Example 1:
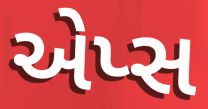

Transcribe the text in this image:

એપ્સ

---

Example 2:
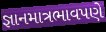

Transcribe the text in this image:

જ્ઞાનમાત્રભાવપણે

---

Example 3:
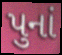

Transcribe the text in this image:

પુનાં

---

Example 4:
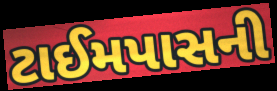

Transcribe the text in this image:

ટાઈમપાસની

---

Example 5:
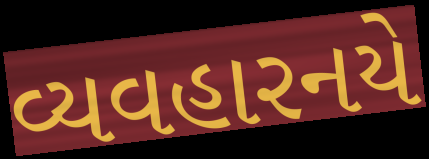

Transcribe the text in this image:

વ્યવહારનયે